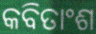
କବିତାଂଶ